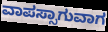
ವಾಪಸ್ಸಾಗುವಾಗ